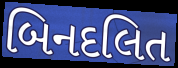
બિનદલિત